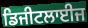
ਡਿਜੀਟਲਾਈਜ